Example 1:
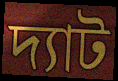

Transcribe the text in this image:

দ্যাট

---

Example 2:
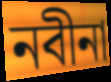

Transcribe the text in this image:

নবীনা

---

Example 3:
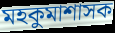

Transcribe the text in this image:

মহকুমাশাসক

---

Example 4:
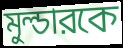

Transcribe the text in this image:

মুল্ডারকে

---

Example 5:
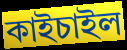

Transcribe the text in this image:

কাইচাইল